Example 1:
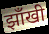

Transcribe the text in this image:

झाँखी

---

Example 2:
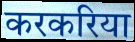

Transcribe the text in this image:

करकरिया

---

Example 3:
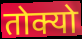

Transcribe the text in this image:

तोक्यो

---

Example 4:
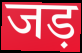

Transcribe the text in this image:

जड़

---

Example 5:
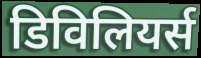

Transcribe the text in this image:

डिविलियर्स